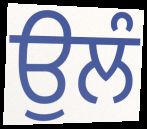
ਉਲੰ